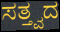
ಸತ್ತ್ವದ